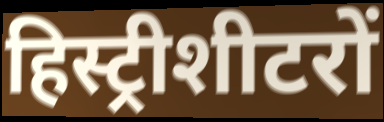
हिस्ट्रीशीटरों